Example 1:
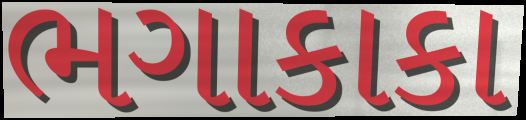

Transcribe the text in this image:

ભગાકાકા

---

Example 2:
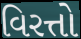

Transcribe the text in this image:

વિરત્તો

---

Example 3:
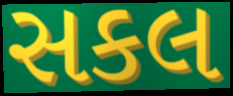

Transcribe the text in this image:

સકલ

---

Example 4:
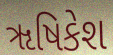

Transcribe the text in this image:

ૠષિકેશ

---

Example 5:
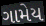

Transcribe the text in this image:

ગામેય